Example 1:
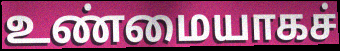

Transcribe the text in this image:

உண்மையாகச்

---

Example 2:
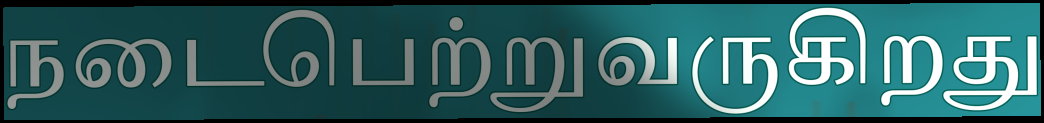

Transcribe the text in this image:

நடைபெற்றுவருகிறது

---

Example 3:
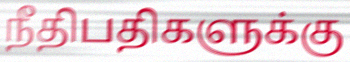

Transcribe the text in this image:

நீதிபதிகளுக்கு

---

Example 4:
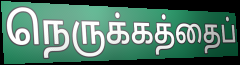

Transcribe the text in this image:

நெருக்கத்தைப்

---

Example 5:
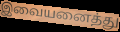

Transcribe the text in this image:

இவையனைத்து